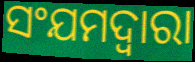
ସଂଯମଦ୍ୱାରା